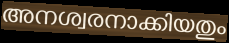
അനശ്വരനാക്കിയതും